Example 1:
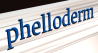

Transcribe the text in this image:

phelloderm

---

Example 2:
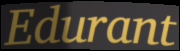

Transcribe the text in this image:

Edurant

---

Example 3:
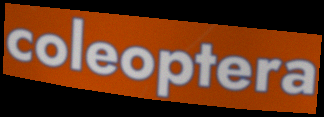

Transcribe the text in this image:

coleoptera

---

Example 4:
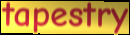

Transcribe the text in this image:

tapestry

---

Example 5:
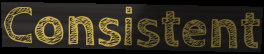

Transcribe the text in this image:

Consistent